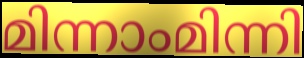
മിന്നാംമിന്നി